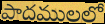
పాదములలో